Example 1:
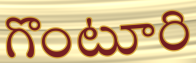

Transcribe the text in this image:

గొంటూరి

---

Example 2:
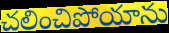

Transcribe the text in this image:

చలించిపోయాను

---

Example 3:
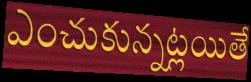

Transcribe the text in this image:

ఎంచుకున్నట్లయితే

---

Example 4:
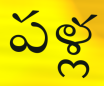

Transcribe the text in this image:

పళ్ల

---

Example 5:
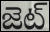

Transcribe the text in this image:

జెట్